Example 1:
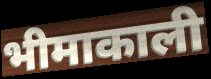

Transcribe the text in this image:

भीमाकाली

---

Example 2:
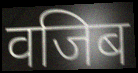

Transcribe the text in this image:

वजिब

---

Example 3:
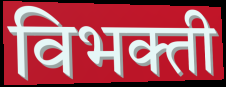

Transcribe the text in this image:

विभक्ती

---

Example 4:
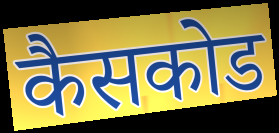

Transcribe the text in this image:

कैसकोड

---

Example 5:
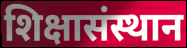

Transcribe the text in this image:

शिक्षासंस्थान